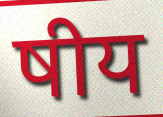
षीय